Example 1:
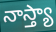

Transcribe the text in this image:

నాస్త్యా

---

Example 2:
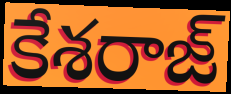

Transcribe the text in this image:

కేశరాజ్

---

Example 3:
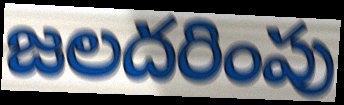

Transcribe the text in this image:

జలదరింపు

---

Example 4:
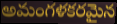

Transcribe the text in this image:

అమంగళకరమైన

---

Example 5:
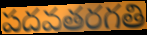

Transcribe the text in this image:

పదవతరగతి